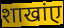
शाखांए